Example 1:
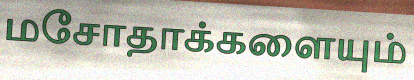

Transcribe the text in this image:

மசோதாக்களையும்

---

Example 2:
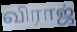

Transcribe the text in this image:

விராஜ்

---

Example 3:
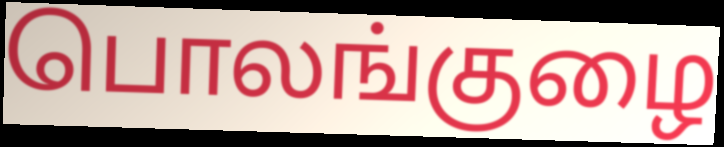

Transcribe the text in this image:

பொலங்குழை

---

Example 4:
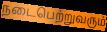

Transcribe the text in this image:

நடைபெற்றுவரும்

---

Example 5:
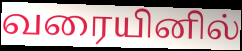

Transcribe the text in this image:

வரையினில்